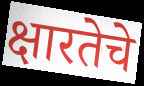
क्षारतेचे